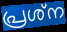
പ്രശ്‌ന